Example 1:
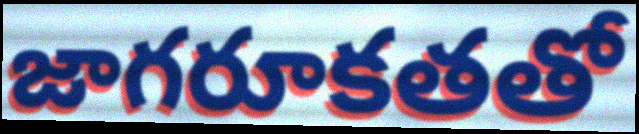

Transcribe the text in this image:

జాగరూకతతో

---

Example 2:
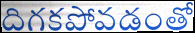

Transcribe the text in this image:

దిగకపోవడంతో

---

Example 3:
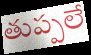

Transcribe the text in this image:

తుప్పలే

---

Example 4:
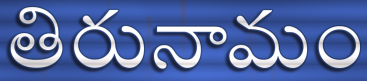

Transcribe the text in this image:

తిరునామం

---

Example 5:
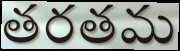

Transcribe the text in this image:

తరతమ